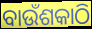
ବାଉଁଶକାଠି